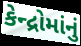
કેન્દ્રોમાંનું